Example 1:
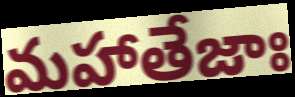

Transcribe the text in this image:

మహాతేజాః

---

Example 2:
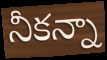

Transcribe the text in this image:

నీకన్నా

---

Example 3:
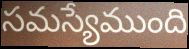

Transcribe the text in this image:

సమస్యేముంది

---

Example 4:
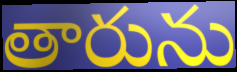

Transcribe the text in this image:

తారును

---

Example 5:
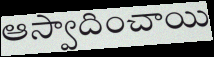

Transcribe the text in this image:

ఆస్వాదించాయి